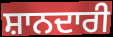
ਸ਼ਾਨਦਾਰੀ